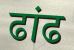
ढांढ